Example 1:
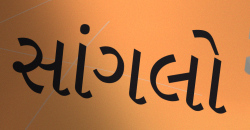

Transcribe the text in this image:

સાંગલો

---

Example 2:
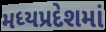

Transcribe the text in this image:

મધ્યપ્રદેશમાં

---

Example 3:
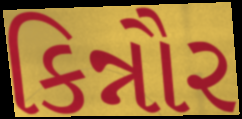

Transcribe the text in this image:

કિન્નૌર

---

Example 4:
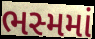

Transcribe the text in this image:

ભસ્મમાં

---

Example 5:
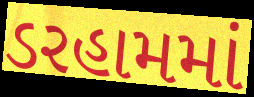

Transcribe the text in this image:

ડરહામમાં